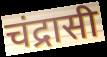
चंद्रासी